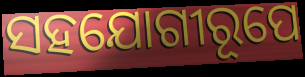
ସହଯୋଗୀରୂପେ